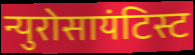
न्युरोसायंटिस्ट